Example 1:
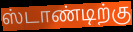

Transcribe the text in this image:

ஸ்டாண்டிற்கு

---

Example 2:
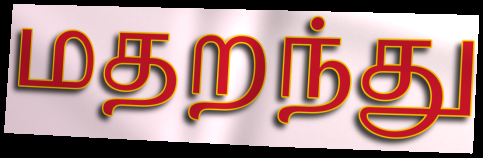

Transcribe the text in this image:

மதறந்து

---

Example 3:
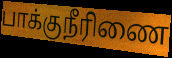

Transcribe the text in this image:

பாக்குநீரிணை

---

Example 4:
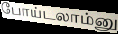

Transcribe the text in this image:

போய்டலாம்னு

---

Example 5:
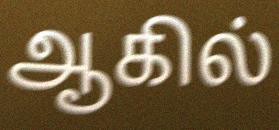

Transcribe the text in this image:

ஆகில்